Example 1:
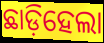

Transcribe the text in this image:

ଛାଡ଼ିହେଲା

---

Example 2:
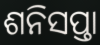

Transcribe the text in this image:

ଶନିସପ୍ତା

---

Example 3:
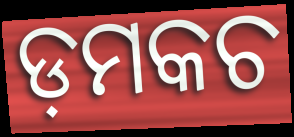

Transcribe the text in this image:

ଡ଼ମକଚ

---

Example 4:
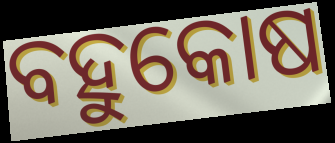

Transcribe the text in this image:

ବହୁକୋଷ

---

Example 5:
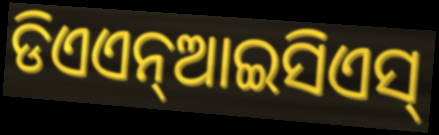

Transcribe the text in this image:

ଡିଏଏନ୍ଆଇସିଏସ୍